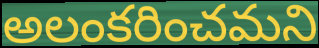
అలంకరించమని